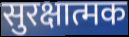
सुरक्षात्मक